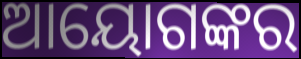
ଆୟୋଗଙ୍କର